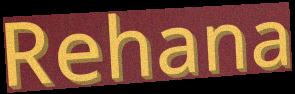
Rehana